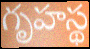
గృహస్థ